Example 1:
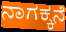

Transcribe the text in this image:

ನಾಗಕ್ಕನೆ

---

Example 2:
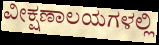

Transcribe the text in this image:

ವೀಕ್ಷಣಾಲಯಗಳಲ್ಲಿ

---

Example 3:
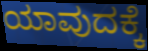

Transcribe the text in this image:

ಯಾವುದಕ್ಕೆ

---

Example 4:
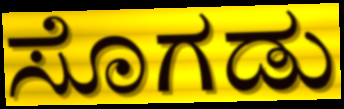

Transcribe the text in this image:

ಸೊಗಡು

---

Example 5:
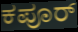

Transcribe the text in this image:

ಕಪೂರ್